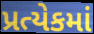
પ્રત્યેકમાં